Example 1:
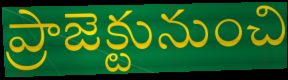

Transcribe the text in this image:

ప్రాజెక్టునుంచి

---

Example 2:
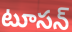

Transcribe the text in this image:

టూసన్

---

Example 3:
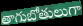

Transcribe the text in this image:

తాగుబోతులుగా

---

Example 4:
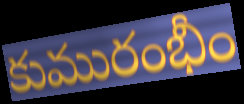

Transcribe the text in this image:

కుమురంభీం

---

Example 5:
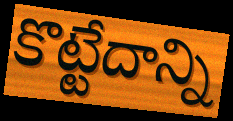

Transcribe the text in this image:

కొట్టేదాన్ని